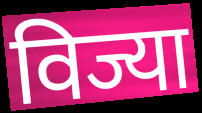
विज्या